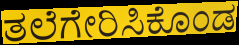
ತಲೆಗೇರಿಸಿಕೊಂಡ